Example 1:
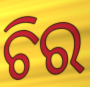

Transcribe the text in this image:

ଚିର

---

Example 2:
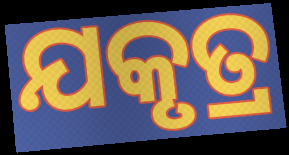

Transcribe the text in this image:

ଯକୃତ୍ର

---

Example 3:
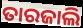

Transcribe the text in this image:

ତାରଜାଲି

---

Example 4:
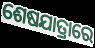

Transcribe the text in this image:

ଶେଷଯାତ୍ରାରେ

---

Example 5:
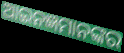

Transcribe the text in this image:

ଆଇନଜ୍ଞମାନଙ୍କର